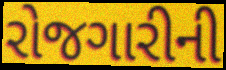
રોજગારીની